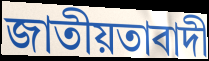
জাতীয়তাবাদী